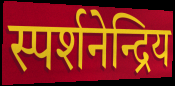
स्पर्शनेन्द्रिय